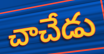
చాచేడు